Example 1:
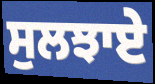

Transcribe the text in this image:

ਸੁਲਝਾਏ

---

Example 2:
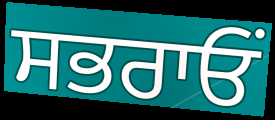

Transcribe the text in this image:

ਸਭਰਾਓਂ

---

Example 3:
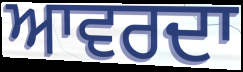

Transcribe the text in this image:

ਆਵਰਦਾ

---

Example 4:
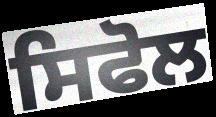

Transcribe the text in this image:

ਸਿਫੋਲ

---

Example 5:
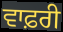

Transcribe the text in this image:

ਵਾਫ਼ਰੀ